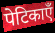
पेटिकाएँ